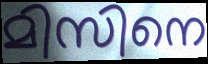
മിസിനെ